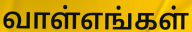
வாள்எங்கள்